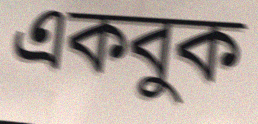
একবুক